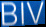
BIV